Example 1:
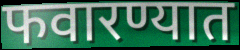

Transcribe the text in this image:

फवारण्यात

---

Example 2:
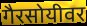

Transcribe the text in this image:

गैरसोयीवर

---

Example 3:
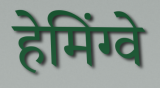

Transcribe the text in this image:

हेमिंग्वे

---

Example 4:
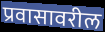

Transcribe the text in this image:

प्रवासावरील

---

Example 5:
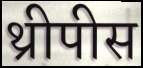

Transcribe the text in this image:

थ्रीपीस